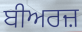
ਬੀਅਰਜ਼